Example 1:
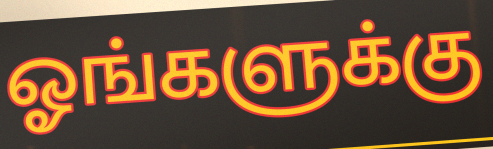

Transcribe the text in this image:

ஓங்களுக்கு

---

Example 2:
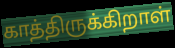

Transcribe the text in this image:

காத்திருக்கிறாள்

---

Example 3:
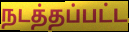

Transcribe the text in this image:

நடத்தப்பட்ட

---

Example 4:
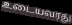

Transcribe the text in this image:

உடையவரது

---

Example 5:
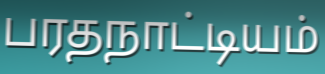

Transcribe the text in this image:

பரதநாட்டியம்